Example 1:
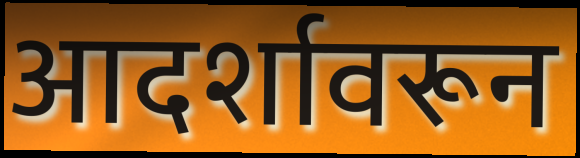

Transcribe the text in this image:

आदर्शावरून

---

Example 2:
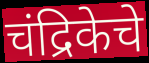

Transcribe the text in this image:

चंद्रिकेचे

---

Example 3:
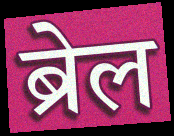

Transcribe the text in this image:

ब्रेल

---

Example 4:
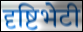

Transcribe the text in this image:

दृष्टिभेटी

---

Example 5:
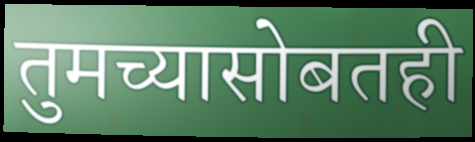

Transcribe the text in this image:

तुमच्यासोबतही